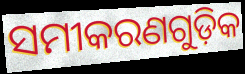
ସମୀକରଣଗୁଡ଼ିକ